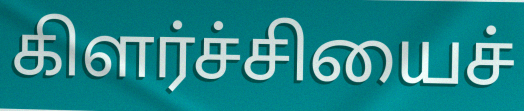
கிளர்ச்சியைச்